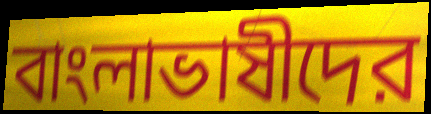
বাংলাভাষীদের